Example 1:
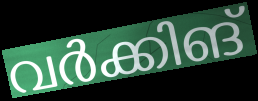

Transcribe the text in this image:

വർക്കിങ്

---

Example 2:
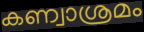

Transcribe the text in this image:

കണ്വാശ്രമം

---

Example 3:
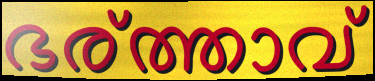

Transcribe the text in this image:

ഭര്ത്താവ്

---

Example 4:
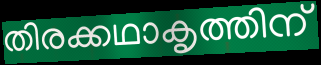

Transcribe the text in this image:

തിരക്കഥാകൃത്തിന്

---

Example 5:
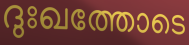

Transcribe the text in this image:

ദുഃഖത്തോടെ